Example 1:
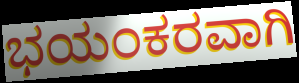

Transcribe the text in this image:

ಭಯಂಕರವಾಗಿ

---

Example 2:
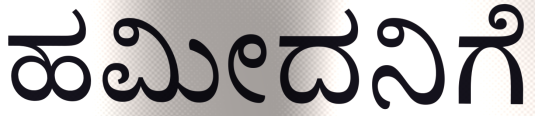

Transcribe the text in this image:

ಹಮೀದನಿಗೆ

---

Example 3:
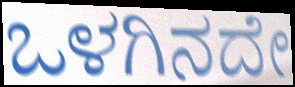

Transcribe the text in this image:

ಒಳಗಿನದೇ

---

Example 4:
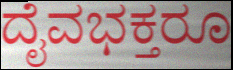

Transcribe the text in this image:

ದೈವಭಕ್ತರೂ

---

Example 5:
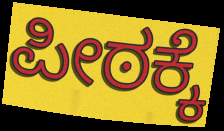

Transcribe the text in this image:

ಪೀಠಕ್ಕೆ